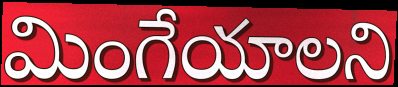
మింగేయాలని